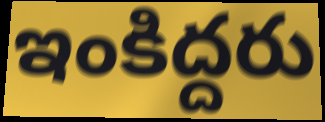
ఇంకిద్దరు